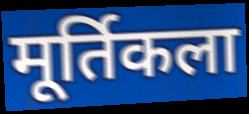
मूर्तिकला